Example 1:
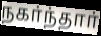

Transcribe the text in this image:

நகர்ந்தார்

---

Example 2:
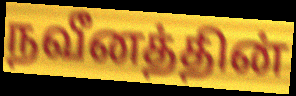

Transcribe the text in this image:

நவீனத்தின்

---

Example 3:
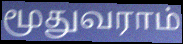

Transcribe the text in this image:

மூதுவராம்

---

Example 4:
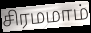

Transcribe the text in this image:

சிரமமாம்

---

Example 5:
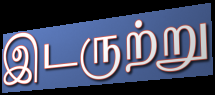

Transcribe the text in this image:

இடருற்று